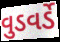
વુડવર્ડે